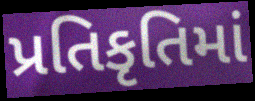
પ્રતિકૃતિમાં